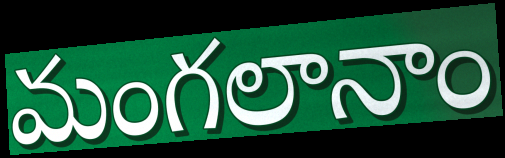
మంగలానాం